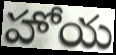
హోయ